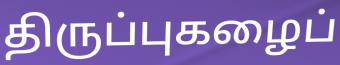
திருப்புகழைப்